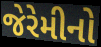
જેરેમીનો